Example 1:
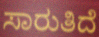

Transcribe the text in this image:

ಸಾರುತಿದೆ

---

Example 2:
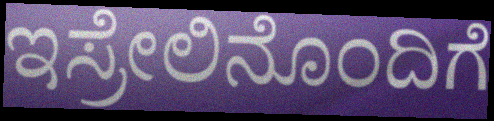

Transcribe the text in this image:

ಇಸ್ರೇಲಿನೊಂದಿಗೆ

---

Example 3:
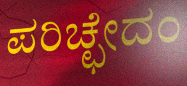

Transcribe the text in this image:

ಪರಿಚ್ಛೇದಂ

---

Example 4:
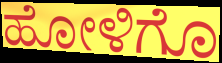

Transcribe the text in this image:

ಹೋಳಿಗೊ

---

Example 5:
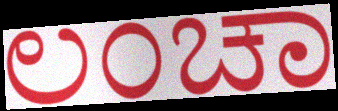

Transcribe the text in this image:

ಲಂಚಾ